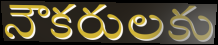
నౌకరులకు